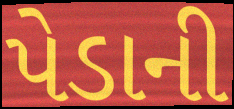
પેડાની